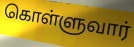
கொள்ளுவார்